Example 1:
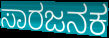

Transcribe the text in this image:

ಸಾರಜನಕ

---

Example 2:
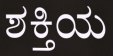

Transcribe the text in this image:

ಶಕ್ತಿಯ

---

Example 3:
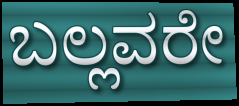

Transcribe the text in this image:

ಬಲ್ಲವರೇ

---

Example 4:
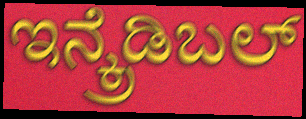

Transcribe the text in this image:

ಇನ್ಕ್ರೆಡಿಬಲ್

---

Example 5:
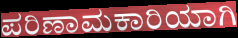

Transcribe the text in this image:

ಪರಿಣಾಮಕಾರಿಯಾಗಿ